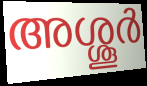
അശ്ശൂർ